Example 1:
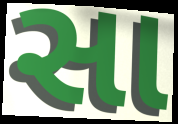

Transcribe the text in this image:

સા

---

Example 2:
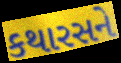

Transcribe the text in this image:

કથારસને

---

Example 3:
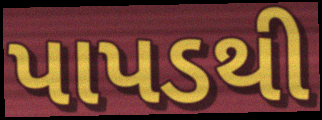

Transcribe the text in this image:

પાપડથી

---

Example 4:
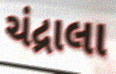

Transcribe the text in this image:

ચંદ્રાલા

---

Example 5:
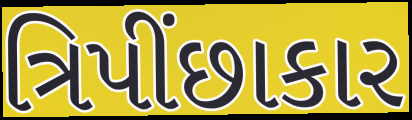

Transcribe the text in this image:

ત્રિપીંછાકાર